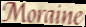
Moraine